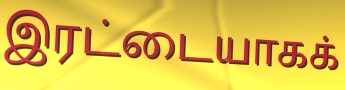
இரட்டையாகக்